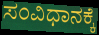
ಸಂವಿಧಾನಕ್ಕೆ